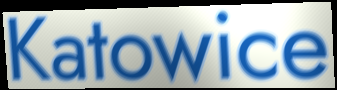
Katowice